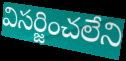
విసర్జించలేని